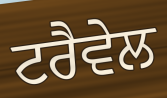
ਟਰੈਵੇਲ